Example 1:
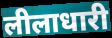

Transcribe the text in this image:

लीलाधारी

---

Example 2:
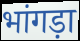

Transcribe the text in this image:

भांगड़ा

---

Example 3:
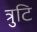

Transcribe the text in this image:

त्रुटि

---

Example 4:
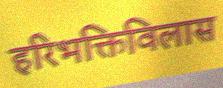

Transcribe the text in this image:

हरिभक्तिविलास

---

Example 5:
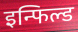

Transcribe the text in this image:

इन्फिल्ड